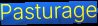
Pasturage